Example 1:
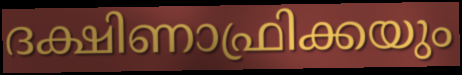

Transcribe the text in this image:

ദക്ഷിണാഫ്രിക്കയും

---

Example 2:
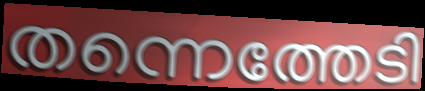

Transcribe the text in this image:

തന്നെത്തേടി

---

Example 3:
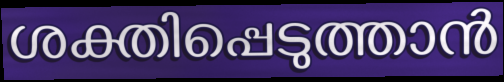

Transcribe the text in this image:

ശക്തിപ്പെടുത്താൻ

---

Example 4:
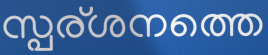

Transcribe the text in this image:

സ്പര്ശനത്തെ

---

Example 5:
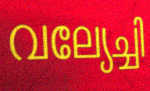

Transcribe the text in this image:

വല്യേച്ചി